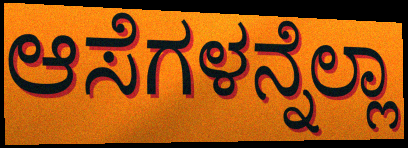
ಆಸೆಗಳನ್ನೆಲ್ಲಾ